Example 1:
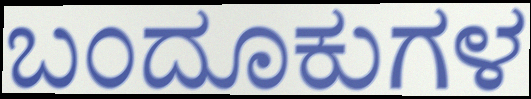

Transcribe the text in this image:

ಬಂದೂಕುಗಳ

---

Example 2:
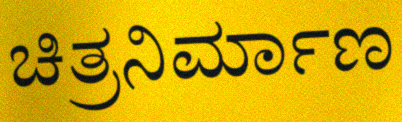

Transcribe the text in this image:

ಚಿತ್ರನಿರ್ಮಾಣ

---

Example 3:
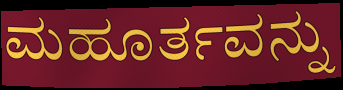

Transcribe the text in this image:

ಮಹೂರ್ತವನ್ನು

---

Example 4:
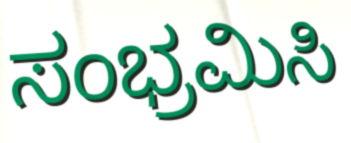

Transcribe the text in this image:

ಸಂಭ್ರಮಿಸಿ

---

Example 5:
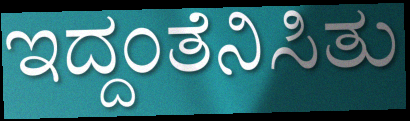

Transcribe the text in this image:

ಇದ್ದಂತೆನಿಸಿತು